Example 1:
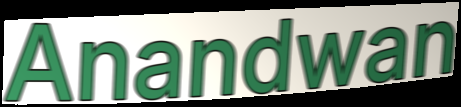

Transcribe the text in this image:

Anandwan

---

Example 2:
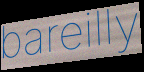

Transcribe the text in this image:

bareilly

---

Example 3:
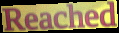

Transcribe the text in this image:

Reached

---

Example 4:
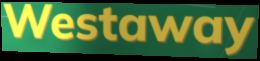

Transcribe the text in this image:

Westaway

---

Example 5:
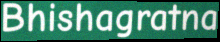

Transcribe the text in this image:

Bhishagratna